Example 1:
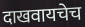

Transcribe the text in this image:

दाखवायचेच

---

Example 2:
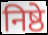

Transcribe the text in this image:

निष्ठे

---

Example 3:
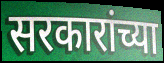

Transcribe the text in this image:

सरकारांच्या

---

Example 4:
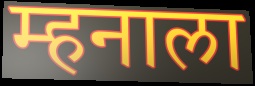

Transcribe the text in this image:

म्हनाला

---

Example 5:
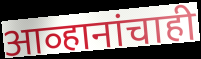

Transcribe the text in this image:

आव्हानांचाही